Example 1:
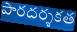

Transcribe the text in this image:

పారదర్శకత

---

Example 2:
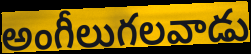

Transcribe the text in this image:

అంగీలుగలవాడు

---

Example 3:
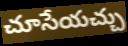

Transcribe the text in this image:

చూసేయచ్చు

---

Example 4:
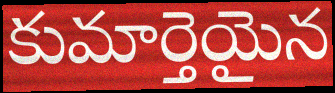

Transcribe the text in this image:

కుమార్తెయైన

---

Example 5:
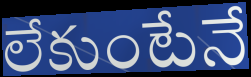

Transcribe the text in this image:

లేకుంటేనే